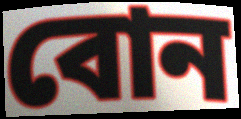
বোন